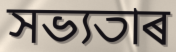
সভ্যতাৰ